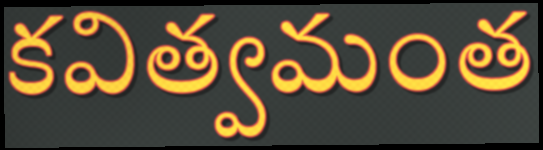
కవిత్వమంత